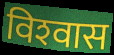
विश्‍वास